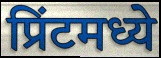
प्रिंटमध्ये